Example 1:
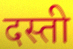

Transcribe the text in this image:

दस्ती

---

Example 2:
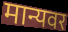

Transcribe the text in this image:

मान्‍यवर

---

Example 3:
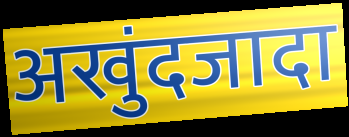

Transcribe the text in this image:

अखुंदजादा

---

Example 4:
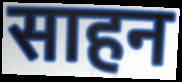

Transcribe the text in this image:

साहन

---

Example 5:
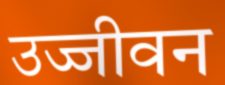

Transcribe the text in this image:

उज्जीवन